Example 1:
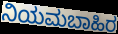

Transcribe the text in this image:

ನಿಯಮಬಾಹಿರ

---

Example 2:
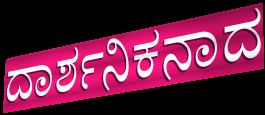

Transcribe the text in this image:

ದಾರ್ಶನಿಕನಾದ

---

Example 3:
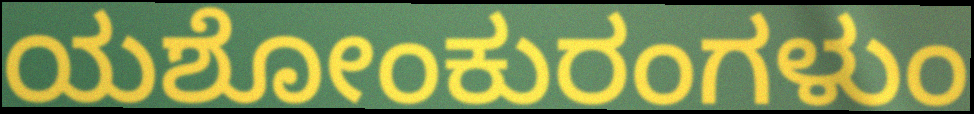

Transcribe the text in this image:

ಯಶೋಂಕುರಂಗಳುಂ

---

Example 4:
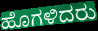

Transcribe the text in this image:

ಹೊಗಳಿದರು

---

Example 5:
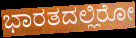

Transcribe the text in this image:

ಭಾರತದಲ್ಲಿರೋ